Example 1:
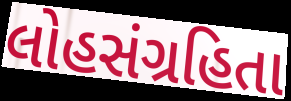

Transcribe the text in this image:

લોહસંગ્રહિતા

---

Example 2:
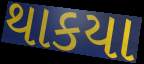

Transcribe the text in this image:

થાકયા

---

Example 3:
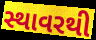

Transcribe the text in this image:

સ્થાવરથી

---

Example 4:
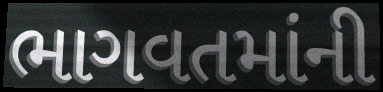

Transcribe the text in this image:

ભાગવતમાંની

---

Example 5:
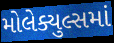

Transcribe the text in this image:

મોલેક્યુલ્સમાં